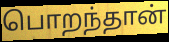
பொறந்தான்